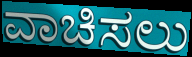
ವಾಚಿಸಲು